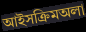
আইসক্রিমঅলা